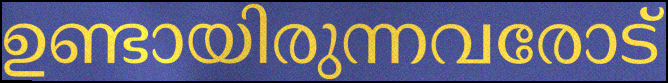
ഉണ്ടായിരുന്നവരോട്